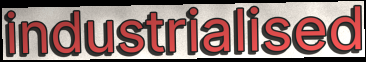
industrialised